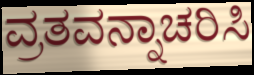
ವ್ರತವನ್ನಾಚರಿಸಿ